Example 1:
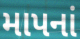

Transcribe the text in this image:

માપનાં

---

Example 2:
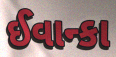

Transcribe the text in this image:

ઈવાન્કા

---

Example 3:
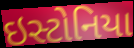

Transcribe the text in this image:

ઇસ્ટોનિયા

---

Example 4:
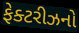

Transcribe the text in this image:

ફેક્ટરીઝનો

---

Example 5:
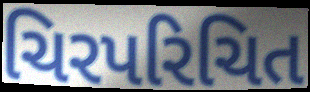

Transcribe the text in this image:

ચિરપરિચિત